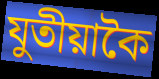
যুতীয়াকৈ